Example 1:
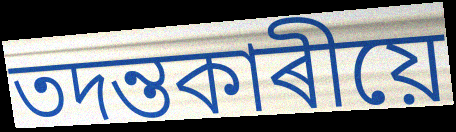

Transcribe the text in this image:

তদন্তকাৰীয়ে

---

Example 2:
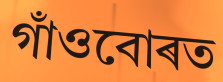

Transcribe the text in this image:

গাঁওবোৰত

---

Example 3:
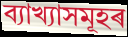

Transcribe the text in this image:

ব্যাখ্যাসমূহৰ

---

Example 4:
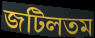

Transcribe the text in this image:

জটিলতম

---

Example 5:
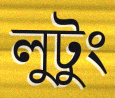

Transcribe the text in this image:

লুটুং